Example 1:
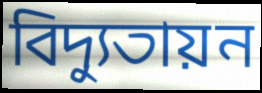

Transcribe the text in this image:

বিদ্যুতায়ন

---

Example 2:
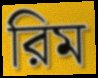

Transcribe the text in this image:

রিম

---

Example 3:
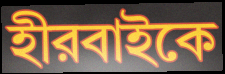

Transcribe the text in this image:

হীরবাইকে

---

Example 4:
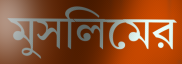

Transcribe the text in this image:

মুসলিমের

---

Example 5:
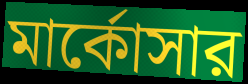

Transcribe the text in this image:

মার্কোসার